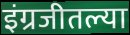
इंग्रजीतल्या